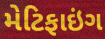
મેટિફાઇંગ